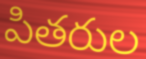
పితరుల